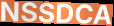
NSSDCA